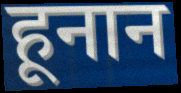
हूनान